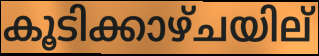
കൂടിക്കാഴ്ചയില്